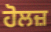
ਹੋਲਜ਼